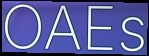
OAEs